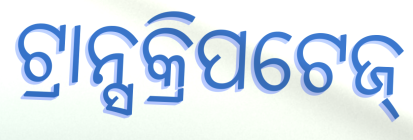
ଟ୍ରାନ୍ସକ୍ରିପଟେଜ୍